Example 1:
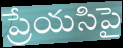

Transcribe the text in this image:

ప్రేయసిపై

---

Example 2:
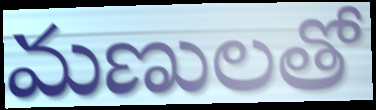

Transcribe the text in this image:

మణులతో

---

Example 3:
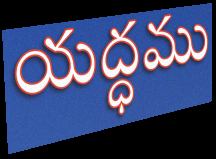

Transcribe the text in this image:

యద్ధము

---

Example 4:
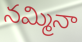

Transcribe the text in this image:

నమ్మినా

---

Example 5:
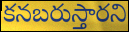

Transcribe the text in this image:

కనబరుస్తారని